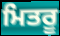
ਮਿਤਰੂ